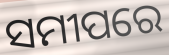
ସମୀପରେ